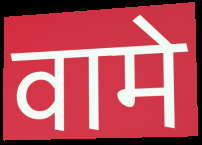
वामे